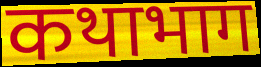
कथाभाग